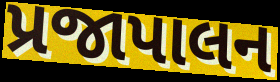
પ્રજાપાલન